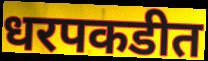
धरपकडीत